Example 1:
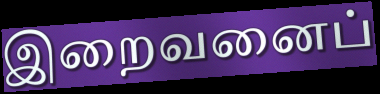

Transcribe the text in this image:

இறைவனைப்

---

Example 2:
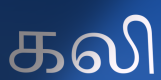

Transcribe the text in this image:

கலி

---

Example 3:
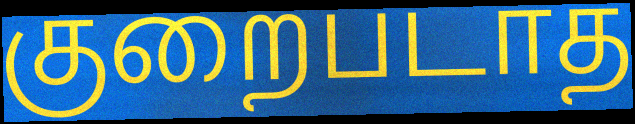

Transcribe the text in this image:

குறைபடாத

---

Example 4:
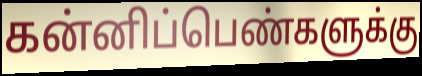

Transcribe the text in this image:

கன்னிப்பெண்களுக்கு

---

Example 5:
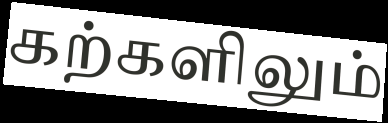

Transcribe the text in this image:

கற்களிலும்